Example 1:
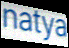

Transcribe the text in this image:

natya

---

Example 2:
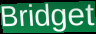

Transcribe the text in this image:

Bridget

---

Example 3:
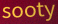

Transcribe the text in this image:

sooty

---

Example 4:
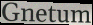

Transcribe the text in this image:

Gnetum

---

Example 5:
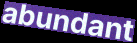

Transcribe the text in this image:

abundant